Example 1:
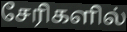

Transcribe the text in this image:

சேரிகளில்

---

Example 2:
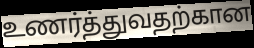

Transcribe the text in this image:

உணர்த்துவதற்கான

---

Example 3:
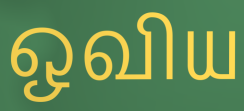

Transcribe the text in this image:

ஒவிய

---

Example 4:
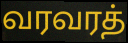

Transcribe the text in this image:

வரவரத்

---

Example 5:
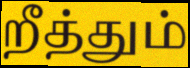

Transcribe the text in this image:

றீத்தும்